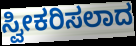
ಸ್ವೀಕರಿಸಲಾದ